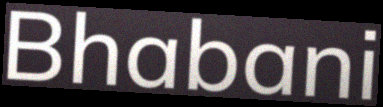
Bhabani